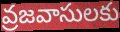
వ్రజవాసులకు